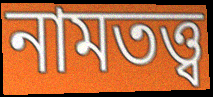
নামতত্ত্ব